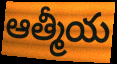
ఆత్మీయ